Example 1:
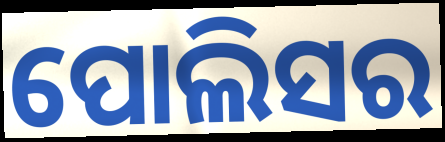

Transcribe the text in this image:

ପୋଲିସର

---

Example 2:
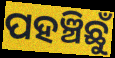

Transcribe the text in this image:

ପହଞ୍ଚିଛୁଁ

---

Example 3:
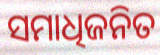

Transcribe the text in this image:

ସମାଧିଜନିତ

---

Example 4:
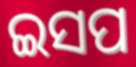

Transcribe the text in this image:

ଇସପ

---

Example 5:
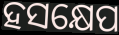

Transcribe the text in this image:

ହସକ୍ଷେପ